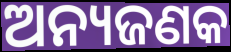
ଅନ୍ୟଜଣକ